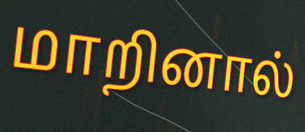
மாறினால்